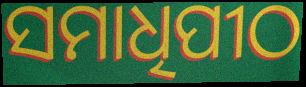
ସମାଧିପୀଠ